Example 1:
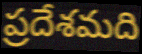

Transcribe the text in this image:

ప్రదేశమది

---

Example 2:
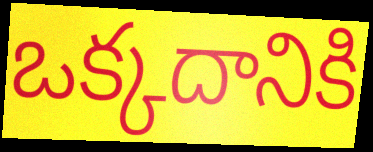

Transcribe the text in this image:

ఒక్కదానికి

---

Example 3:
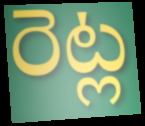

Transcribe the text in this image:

రెట్ల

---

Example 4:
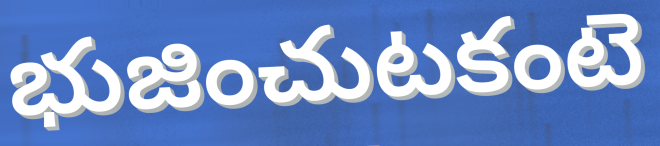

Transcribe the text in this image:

భుజించుటకంటె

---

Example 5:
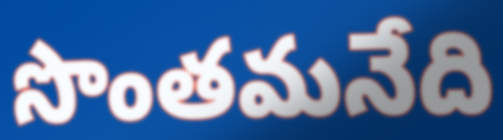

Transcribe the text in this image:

సొంతమనేది